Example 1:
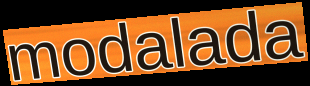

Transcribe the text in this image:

modalada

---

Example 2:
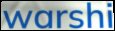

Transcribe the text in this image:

warshi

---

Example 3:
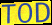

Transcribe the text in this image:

TOD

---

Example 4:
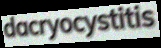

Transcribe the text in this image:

dacryocystitis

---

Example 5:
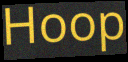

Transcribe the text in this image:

Hoop